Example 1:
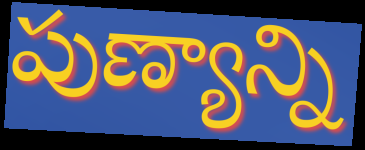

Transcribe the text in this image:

పుణ్యాన్ని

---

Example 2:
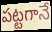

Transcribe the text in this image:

పట్టగానే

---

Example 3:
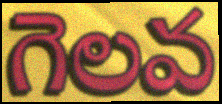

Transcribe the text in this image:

గెలవ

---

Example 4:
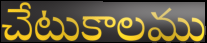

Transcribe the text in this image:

చేటుకాలము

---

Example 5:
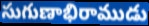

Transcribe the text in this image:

సుగుణాభిరాముడు